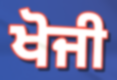
ਖੋਜੀ